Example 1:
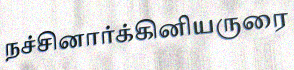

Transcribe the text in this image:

நச்சினார்க்கினியருரை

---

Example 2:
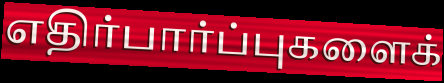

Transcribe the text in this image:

எதிர்பார்ப்புகளைக்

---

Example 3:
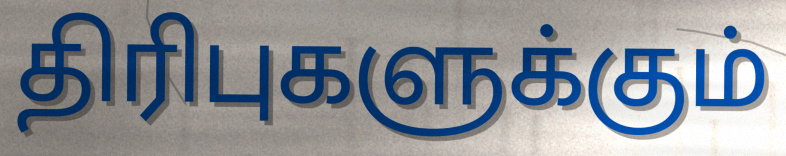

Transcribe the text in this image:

திரிபுகளுக்கும்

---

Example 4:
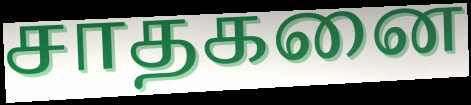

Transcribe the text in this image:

சாதகனை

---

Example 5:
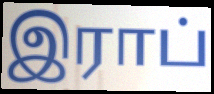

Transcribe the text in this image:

இராப்